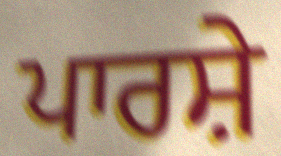
ਪਾਰਸ਼ੇ